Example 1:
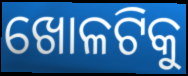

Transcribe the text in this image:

ଖୋଳଟିକୁ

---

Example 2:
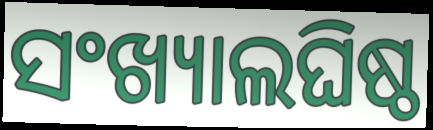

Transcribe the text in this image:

ସଂଖ୍ୟାଲଘିଷ୍ଠ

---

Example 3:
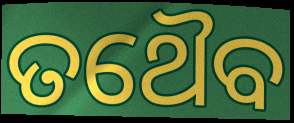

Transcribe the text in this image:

ତଥୈବ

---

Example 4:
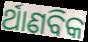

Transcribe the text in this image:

ର୍ଥାଣବିକ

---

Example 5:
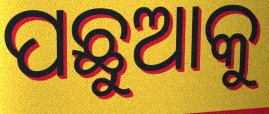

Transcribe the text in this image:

ପଛୁଆକୁ